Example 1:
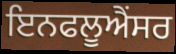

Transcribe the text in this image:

ਇਨਫਲੂਐਂਸਰ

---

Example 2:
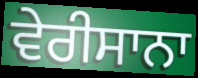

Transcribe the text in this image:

ਵੇਰੀਸਾਨਾ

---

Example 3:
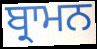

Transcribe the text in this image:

ਬ੍ਰਾਮਨ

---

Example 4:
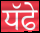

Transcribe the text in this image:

ਧੱਫੇ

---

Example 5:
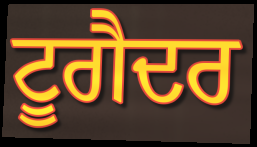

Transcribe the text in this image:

ਟੂਗੈਦਰ